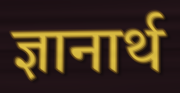
ज्ञानार्थ